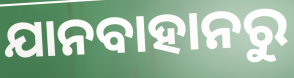
ଯାନବାହାନରୁ